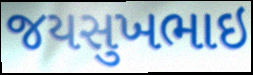
જયસુખભાઇ